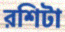
রশিটা